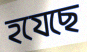
হযেছে